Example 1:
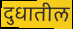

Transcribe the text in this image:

दुधातील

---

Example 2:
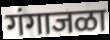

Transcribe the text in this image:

गंगाजळा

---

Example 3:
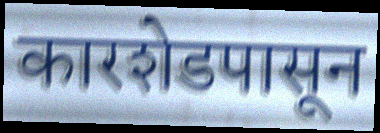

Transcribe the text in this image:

कारशेडपासून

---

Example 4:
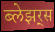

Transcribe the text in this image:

ब्लेझर्स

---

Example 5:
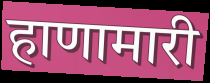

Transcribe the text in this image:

हाणामारी